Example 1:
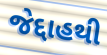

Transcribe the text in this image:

જેદ્દાહથી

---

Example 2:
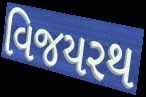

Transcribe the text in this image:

વિજયરથ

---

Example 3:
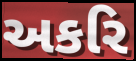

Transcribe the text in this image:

અકરિ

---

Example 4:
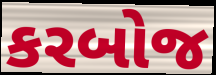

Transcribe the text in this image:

કરબોજ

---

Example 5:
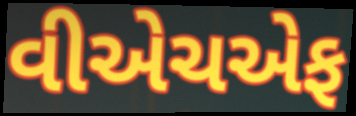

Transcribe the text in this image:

વીએચએફ